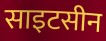
साइटसीन